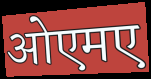
ओएमए